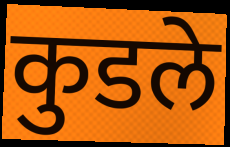
कुडले